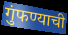
गुंफण्याची